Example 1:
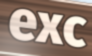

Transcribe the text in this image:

exc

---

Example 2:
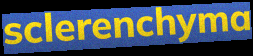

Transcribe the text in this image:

sclerenchyma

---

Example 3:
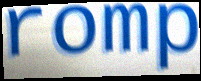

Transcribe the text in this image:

romp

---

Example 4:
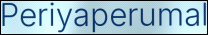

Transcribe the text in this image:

Periyaperumal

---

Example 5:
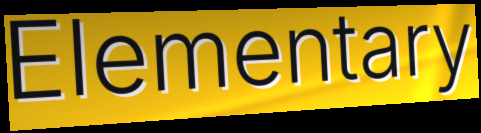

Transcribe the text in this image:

Elementary